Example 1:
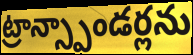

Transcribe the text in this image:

ట్రాన్స్పాండర్లను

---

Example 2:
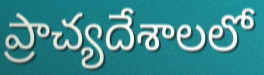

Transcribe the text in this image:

ప్రాచ్యదేశాలలో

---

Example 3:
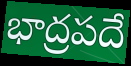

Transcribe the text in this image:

భాద్రపదే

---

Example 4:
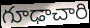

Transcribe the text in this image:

గూఢాచారి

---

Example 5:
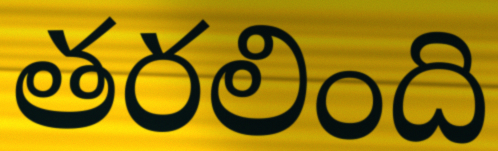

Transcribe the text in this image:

తరలింది